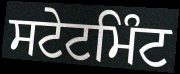
ਸਟੇਟਮਿੰਟ